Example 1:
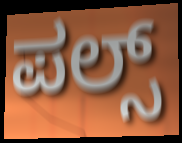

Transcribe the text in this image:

ಪಲ್ಸ್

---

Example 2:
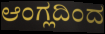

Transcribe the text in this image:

ಆಂಗ್ಲದಿಂದ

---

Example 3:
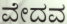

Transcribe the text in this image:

ವೇದವ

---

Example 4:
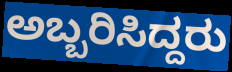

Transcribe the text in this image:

ಅಬ್ಬರಿಸಿದ್ದರು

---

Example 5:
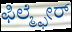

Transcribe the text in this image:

ಫಿಲ್ಮ್ಫೇರ್